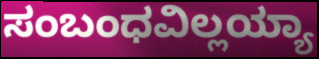
ಸಂಬಂಧವಿಲ್ಲಯ್ಯಾ